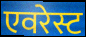
एवरेस्ट